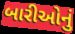
બારીઓનું